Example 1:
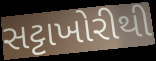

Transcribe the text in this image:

સટ્ટાખોરીથી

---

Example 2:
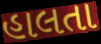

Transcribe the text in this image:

હાલતા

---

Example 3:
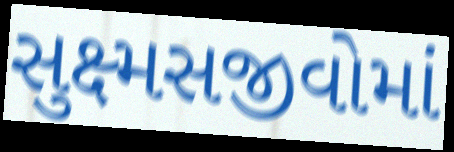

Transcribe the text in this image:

સુક્ષ્મસજીવોમાં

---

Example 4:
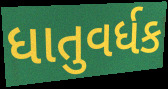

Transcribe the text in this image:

ધાતુવર્ધક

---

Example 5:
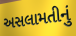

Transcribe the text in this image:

અસલામતીનું